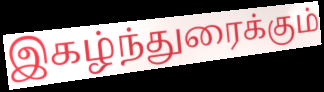
இகழ்ந்துரைக்கும்